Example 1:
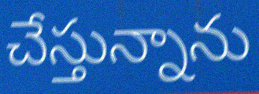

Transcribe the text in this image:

చేస్తున్నాను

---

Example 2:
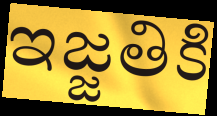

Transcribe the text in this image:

ఇజ్జతికి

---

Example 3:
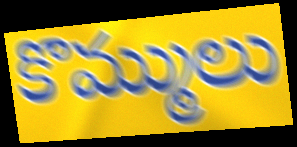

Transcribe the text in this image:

కొమ్ములు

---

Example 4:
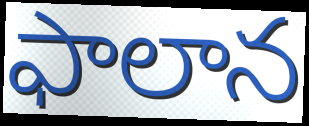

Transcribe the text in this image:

ఫాలాన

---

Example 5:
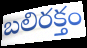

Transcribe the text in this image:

బలిరక్తం